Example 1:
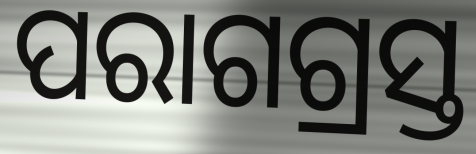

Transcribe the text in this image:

ପରାଗଗ୍ରସ୍ତ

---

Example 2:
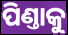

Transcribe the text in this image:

ପିଣ୍ତାକୁ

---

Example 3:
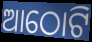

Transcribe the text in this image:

ଆଠୋଟି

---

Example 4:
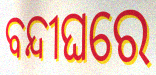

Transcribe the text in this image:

ବନ୍ଦୀଘରେ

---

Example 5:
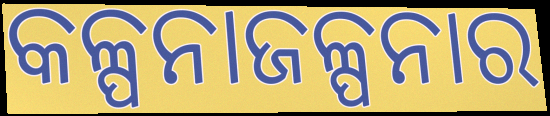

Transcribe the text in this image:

କଳ୍ପନାଜଳ୍ପନାର